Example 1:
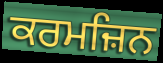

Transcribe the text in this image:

ਕਰਮਜ਼ਿਨ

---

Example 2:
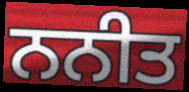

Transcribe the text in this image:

ਨਨੀਤ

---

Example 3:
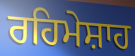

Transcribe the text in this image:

ਰਹਿਮੇਸ਼ਾਹ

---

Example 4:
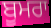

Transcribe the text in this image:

ਬੂਮਰਾ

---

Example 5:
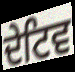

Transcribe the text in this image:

ਦੇਟਿਵ